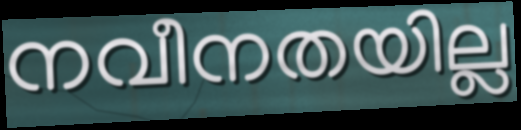
നവീനതയില്ല